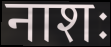
नाशः